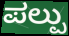
ಪಲ್ಪು